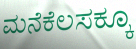
ಮನೆಕೆಲಸಕ್ಕೂ